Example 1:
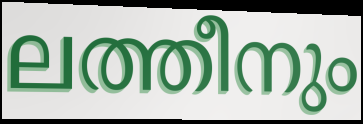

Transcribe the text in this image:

ലത്തീനും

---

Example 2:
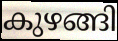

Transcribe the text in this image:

കുഴങ്ങി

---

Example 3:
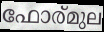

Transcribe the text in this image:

ഫോര്മുല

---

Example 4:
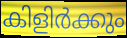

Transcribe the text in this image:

കിളിർക്കും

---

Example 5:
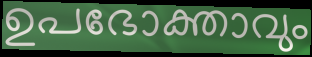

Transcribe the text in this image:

ഉപഭോക്താവും